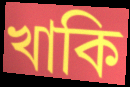
খাকি